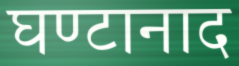
घण्टानाद